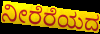
ನೀರೆರೆಯದ